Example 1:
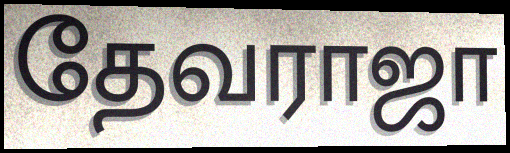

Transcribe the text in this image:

தேவராஜா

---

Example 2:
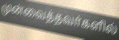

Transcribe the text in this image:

முன்வைத்தவர்களில்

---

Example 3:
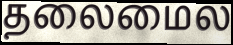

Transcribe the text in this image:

தலைமைல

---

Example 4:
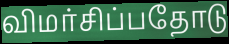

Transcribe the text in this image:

விமர்சிப்பதோடு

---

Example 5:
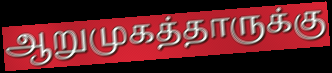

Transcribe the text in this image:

ஆறுமுகத்தாருக்கு